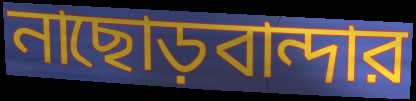
নাছোড়বান্দার